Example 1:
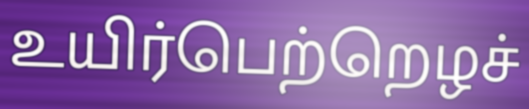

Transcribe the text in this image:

உயிர்பெற்றெழச்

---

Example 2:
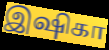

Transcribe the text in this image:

இஷிகா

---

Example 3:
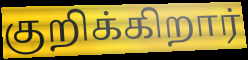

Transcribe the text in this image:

குறிக்கிறார்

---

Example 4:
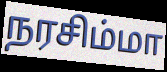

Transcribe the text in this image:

நரசிம்மா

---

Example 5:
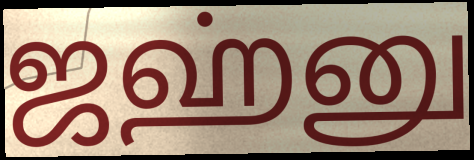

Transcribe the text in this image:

ஜஹ்னு